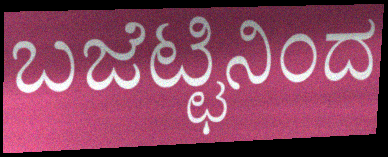
ಬಜೆಟ್ಟಿನಿಂದ